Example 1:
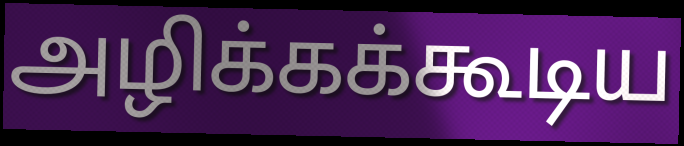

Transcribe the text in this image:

அழிக்கக்கூடிய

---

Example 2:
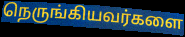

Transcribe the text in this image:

நெருங்கியவர்களை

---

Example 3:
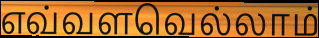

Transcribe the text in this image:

எவ்வளவெல்லாம்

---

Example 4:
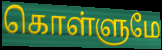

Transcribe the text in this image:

கொள்ளுமே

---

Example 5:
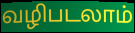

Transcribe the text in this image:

வழிபடலாம்